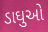
ડાઘુઓ